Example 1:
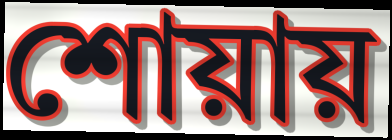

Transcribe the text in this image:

শোয়ায়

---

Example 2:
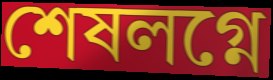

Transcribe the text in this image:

শেষলগ্নে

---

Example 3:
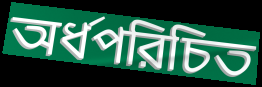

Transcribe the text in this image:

অর্ধপরিচিত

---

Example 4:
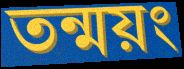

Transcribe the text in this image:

তন্ময়ং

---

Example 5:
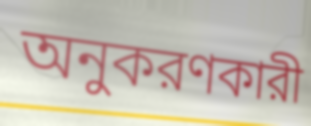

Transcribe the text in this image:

অনুকরণকারী